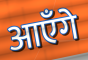
आएँगे